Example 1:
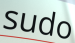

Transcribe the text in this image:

sudo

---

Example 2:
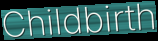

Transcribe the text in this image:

Childbirth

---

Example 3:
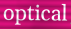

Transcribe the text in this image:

optical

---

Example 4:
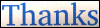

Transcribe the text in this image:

Thanks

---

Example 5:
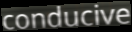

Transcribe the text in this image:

conducive